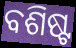
ବଶିଷ୍ଟ